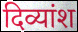
दिव्यांश